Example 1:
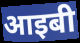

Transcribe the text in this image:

आइबी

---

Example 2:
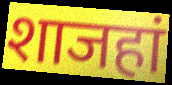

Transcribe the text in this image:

शाजहां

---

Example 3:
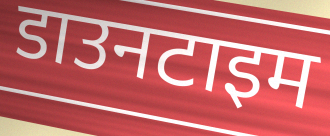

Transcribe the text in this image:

डाउनटाइम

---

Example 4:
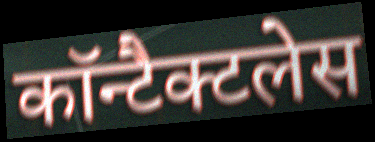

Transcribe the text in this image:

कॉन्टैक्टलेस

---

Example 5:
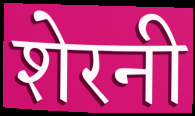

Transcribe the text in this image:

शेरनी